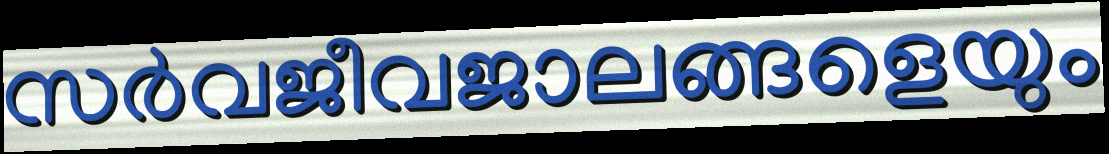
സർവജീവജാലങ്ങളെയും